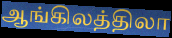
ஆங்கிலத்திலா